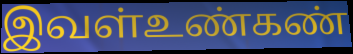
இவள்உண்கண்